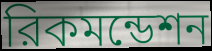
রিকমন্ডেশন